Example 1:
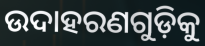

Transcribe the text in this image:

ଉଦାହରଣଗୁଡ଼ିକୁ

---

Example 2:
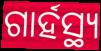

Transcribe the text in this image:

ଗାର୍ହସ୍ଥ୍ୟ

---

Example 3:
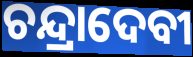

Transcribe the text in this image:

ଚନ୍ଦ୍ରାଦେବୀ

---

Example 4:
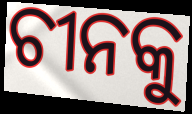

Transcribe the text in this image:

ଚୀନକୁ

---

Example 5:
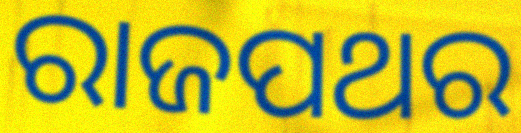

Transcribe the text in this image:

ରାଜପଥର